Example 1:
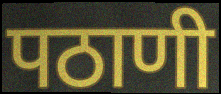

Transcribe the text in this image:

पठाणी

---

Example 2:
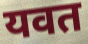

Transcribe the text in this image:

यवत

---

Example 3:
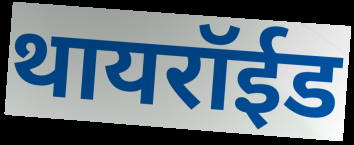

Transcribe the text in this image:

थायरॉईड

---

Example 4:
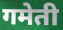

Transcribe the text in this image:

गमेती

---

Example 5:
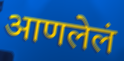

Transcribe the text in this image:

आणलेलं